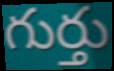
గుర్తు